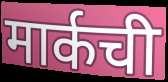
मार्कची